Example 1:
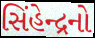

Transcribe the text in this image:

સિંહેન્દ્રનો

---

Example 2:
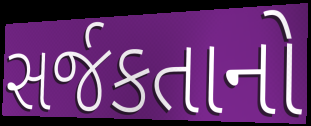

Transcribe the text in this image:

સર્જકતાનો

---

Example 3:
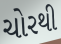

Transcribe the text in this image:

ચોરથી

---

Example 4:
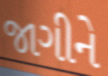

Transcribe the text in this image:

જાગીને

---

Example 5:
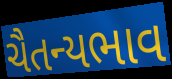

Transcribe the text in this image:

ચૈતન્યભાવ